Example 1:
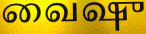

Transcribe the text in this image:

வைஷு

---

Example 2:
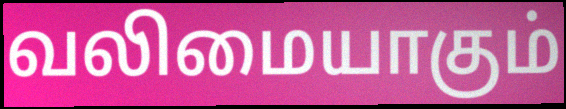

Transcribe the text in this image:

வலிமையாகும்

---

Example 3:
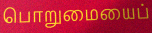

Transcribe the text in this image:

பொறுமையைப்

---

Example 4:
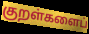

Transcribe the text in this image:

குறள்களைப்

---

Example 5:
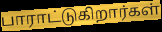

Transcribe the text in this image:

பாராட்டுகிறார்கள்